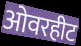
ओवरहीट